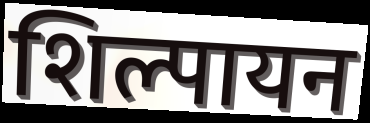
शिल्पायन